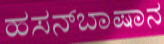
ಹಸನ್‌ಬಾಷಾನ